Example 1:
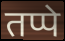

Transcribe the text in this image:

तप्पे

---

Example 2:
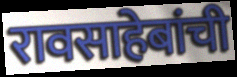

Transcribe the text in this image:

रावसाहेबांची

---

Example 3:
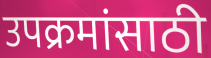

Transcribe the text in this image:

उपक्रमांसाठी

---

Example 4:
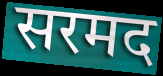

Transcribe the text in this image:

सरमद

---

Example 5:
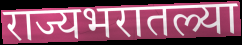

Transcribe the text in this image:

राज्यभरातल्या